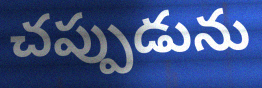
చప్పుడును